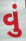
વું